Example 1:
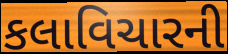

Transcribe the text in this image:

કલાવિચારની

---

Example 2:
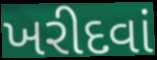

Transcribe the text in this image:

ખરીદવાં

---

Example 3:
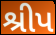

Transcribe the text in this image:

શ્રીપ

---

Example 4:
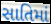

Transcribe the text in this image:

સાતિમાં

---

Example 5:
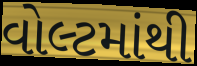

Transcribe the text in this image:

વોલ્ટમાંથી